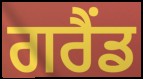
ਗਰੈਂਡ